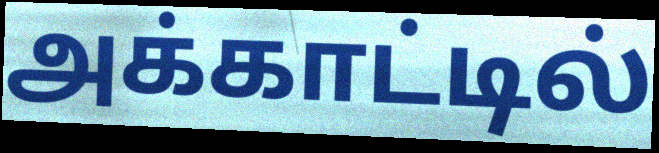
அக்காட்டில்